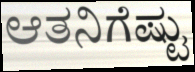
ಆತನಿಗೆಷ್ಟು